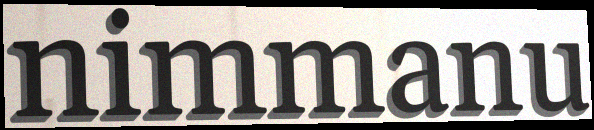
nimmanu